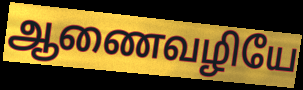
ஆணைவழியே